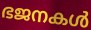
ഭജനകൾ